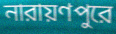
নারায়ণপুরে